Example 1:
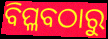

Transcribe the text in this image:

ବିପ୍ଳବଠାରୁ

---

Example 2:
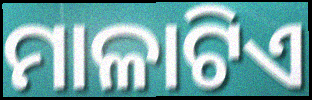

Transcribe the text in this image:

ମାଳାଟିଏ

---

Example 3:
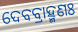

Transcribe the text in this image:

ଦେବବ୍ରାହ୍ମଣଃ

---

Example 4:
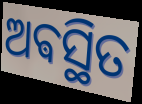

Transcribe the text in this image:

ଅଵସ୍ଥିତ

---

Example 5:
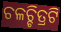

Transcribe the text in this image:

ଚଳଚ୍ଚିତ୍ରଟି